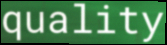
quality